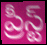
ప్రీస్ట్